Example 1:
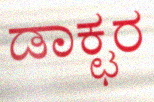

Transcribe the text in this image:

ಡಾಕ್ಟರ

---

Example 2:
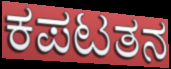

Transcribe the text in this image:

ಕಪಟತನ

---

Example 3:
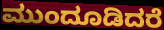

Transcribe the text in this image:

ಮುಂದೂಡಿದರೆ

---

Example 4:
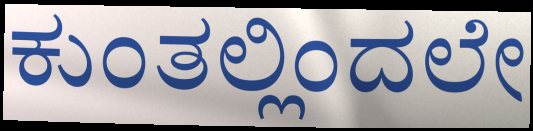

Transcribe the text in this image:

ಕುಂತಲ್ಲಿಂದಲೇ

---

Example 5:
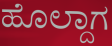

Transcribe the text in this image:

ಹೊಲ್ದಾಗ